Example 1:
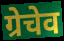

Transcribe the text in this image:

ग्रेचेव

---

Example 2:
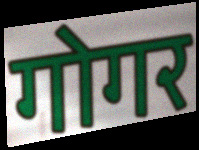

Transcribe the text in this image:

गोगर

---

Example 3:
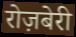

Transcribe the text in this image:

रोज़बेरी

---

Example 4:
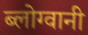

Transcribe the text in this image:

ब्लोग्वानी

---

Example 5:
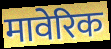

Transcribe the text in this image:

मावेरिक